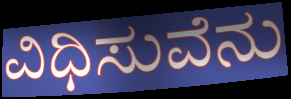
ವಿಧಿಸುವೆನು